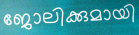
ജോലിക്കുമായി